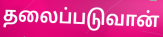
தலைப்படுவான்